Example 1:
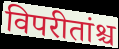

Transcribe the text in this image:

विपरीतांश्च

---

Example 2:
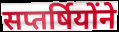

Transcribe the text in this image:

सप्तर्षियोंने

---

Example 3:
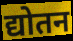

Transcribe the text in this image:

द्योतन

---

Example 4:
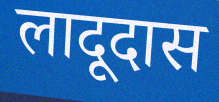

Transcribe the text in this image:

लादूदास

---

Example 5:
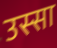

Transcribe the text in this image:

उस्सा